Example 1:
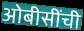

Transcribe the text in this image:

ओबीसींची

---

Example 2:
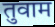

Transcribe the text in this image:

तुवाम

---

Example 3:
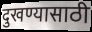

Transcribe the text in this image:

दुखण्यासाठी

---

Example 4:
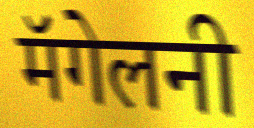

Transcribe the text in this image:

मॅगेलनी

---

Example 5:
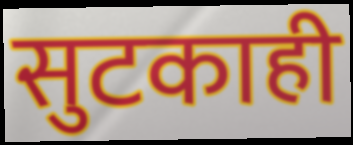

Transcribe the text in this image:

सुटकाही